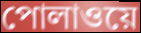
পোলাওয়ে